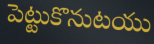
పెట్టుకొనుటయు